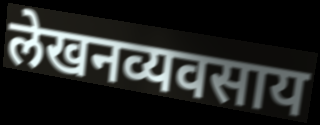
लेखनव्यवसाय